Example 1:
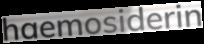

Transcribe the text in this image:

haemosiderin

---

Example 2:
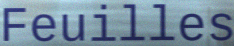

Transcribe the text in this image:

Feuilles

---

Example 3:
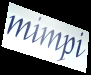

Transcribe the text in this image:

mimpi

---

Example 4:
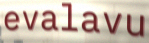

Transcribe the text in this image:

evalavu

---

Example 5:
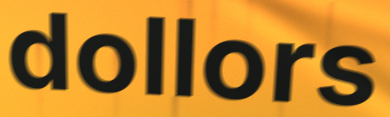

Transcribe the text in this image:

dollors